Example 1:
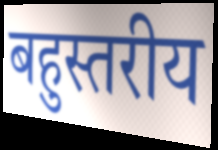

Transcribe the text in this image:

बहुस्तरीय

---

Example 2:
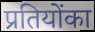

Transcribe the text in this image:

प्रतियोंका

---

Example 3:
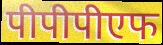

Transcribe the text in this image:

पीपीपीएफ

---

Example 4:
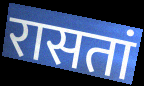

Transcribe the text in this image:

रासतां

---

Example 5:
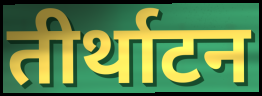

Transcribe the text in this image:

तीर्थाटन